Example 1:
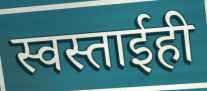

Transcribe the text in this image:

स्वस्ताईही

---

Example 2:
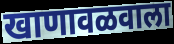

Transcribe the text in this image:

खाणावळवाला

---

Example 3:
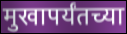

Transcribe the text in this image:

मुखापर्यंतच्या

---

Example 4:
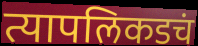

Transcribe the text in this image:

त्यापलिकडचं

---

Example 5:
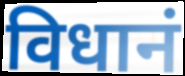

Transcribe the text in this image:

विधानं